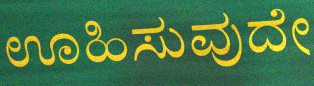
ಊಹಿಸುವುದೇ